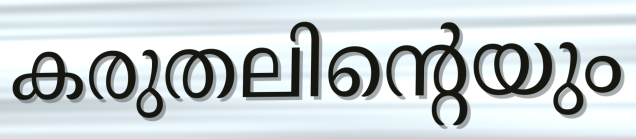
കരുതലിന്റെയും